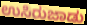
ಉಸಿರುಜಾಡು